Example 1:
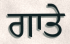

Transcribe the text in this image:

ਗਾਤੇ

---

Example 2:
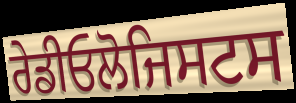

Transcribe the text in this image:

ਰੇਡੀਓਲੋਜਿਸਟਸ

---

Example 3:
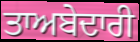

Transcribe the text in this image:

ਤਾਅਬੇਦਾਰੀ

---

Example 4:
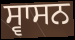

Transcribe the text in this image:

ਸ੍ਵਾਸਨ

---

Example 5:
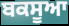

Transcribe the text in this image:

ਬਕਸੂਆ